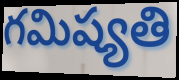
గమిష్యతి